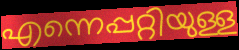
എന്നെപ്പറ്റിയുള്ള